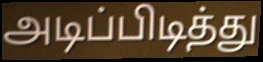
அடிப்பிடித்து